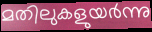
മതിലുകളുയർന്നു